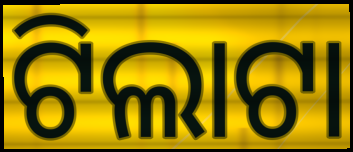
ଟିଲାଟା